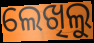
ଲେଖିଲୁ